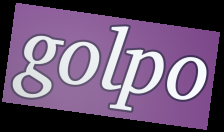
golpo